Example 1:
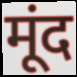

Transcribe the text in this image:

मूंद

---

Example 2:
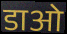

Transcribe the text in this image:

डाओ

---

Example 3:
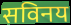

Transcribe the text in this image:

सविनय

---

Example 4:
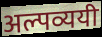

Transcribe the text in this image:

अल्पव्ययी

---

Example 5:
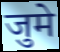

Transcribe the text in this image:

जुमे